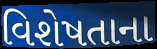
વિશેષતાના